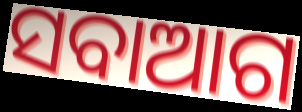
ସବାଆଗ